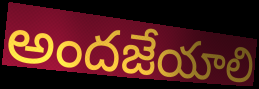
అందజేయాలి